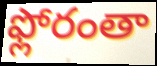
ఫ్లోరంతా